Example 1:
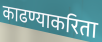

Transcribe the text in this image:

काढण्याकरिता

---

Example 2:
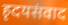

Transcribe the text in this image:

हृदयसंवाद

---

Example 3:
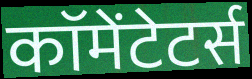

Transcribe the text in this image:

कॉमेंटेटर्स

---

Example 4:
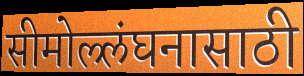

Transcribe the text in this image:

सीमोल्लंघनासाठी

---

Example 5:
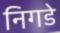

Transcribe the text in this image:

निगडे